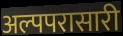
अल्पपरासारी